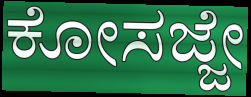
ಕೋಸಜ್ಜೇ